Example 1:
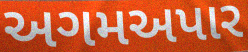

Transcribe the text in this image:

અગમઅપાર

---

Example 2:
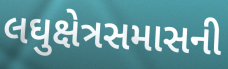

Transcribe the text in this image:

લઘુક્ષેત્રસમાસની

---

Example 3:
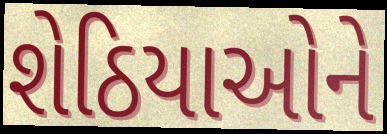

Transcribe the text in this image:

શેઠિયાઓને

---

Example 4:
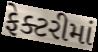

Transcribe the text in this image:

ફેક્ટરીમાં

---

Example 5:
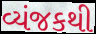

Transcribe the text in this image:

વ્યંજકથી